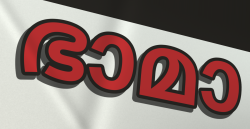
ഭാമാ